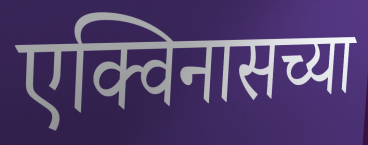
एक्विनासच्या